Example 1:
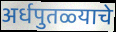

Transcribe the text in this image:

अर्धपुतळ्याचे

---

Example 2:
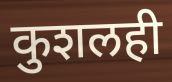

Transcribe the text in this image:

कुशलही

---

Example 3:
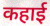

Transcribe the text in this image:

कहाई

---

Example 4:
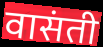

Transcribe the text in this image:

वासंती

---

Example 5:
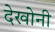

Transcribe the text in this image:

देखोनी